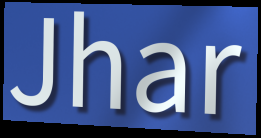
Jhar